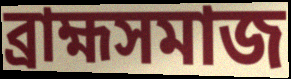
ব্রাহ্মসমাজ